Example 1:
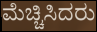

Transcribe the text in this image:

ಮೆಚ್ಚಿಸಿದರು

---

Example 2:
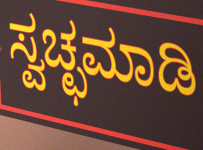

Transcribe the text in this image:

ಸ್ವಚ್ಛಮಾಡಿ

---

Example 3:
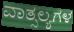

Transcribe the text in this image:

ವಾತ್ಸಲ್ಯಗಳ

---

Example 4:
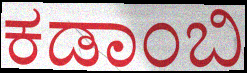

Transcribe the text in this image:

ಕಡಾಂಬಿ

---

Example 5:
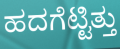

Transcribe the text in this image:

ಹದಗೆಟ್ಟಿತ್ತು